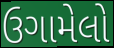
ઉગામેલો